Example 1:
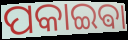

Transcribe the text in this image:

ପକାଇଵା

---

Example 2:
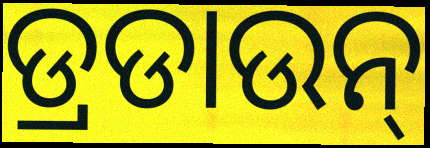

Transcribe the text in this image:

ଡ୍ରଡାଉନ୍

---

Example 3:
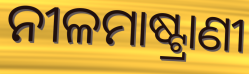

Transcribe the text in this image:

ନୀଳମାଷ୍ଟ୍ରାଣୀ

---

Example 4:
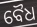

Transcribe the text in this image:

ବୈଧ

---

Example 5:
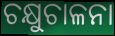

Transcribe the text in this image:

ଚକ୍ଷୁଚାଳନା